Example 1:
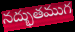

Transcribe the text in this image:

నద్భుతముగ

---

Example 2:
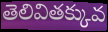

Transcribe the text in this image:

తెలివితక్కువ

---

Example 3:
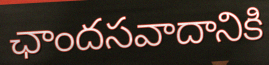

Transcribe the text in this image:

ఛాందసవాదానికి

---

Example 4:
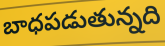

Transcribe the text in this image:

బాధపడుతున్నది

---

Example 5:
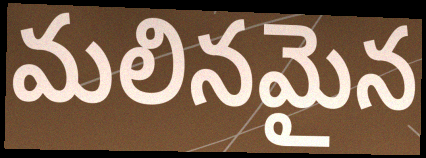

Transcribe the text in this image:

మలినమైన